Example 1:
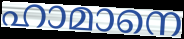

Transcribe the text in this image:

ഹാമാനെ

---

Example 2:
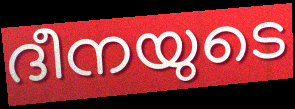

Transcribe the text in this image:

ദീനയുടെ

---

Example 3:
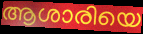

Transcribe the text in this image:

ആശാരിയെ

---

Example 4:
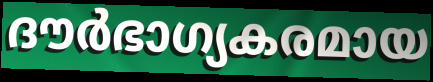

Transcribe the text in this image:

ദൗർഭാഗ്യകരമായ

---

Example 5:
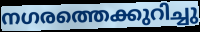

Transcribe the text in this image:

നഗരത്തെക്കുറിച്ചു